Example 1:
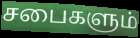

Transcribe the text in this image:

சபைகளும்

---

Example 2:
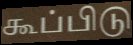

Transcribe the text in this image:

கூப்பிடு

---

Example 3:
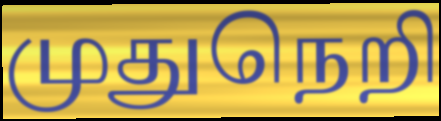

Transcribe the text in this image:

முதுநெறி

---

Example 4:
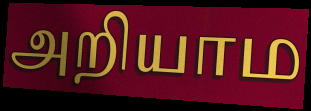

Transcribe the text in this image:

அறியாம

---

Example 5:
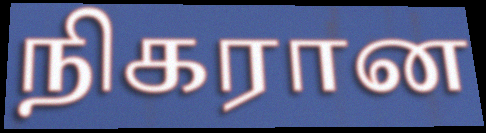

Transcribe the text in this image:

நிகரான